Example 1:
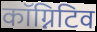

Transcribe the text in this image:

कॉग्निटिव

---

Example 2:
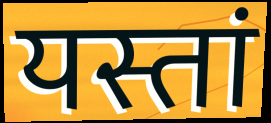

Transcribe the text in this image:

यस्तां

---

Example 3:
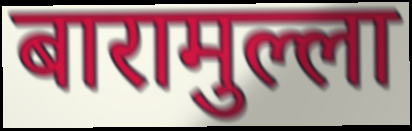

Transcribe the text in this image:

बारामुल्ला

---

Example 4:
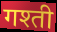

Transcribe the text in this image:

गश्‍ती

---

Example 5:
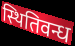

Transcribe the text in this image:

स्थितिवन्ध